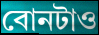
বোনটাও